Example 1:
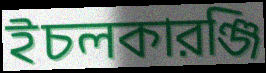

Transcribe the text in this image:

ইচলকারঞ্জি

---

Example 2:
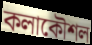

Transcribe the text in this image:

কলাকৌশল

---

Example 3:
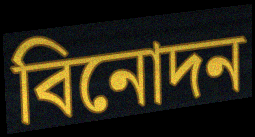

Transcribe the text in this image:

বিনোদন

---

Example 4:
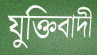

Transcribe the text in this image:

যুক্তিবাদী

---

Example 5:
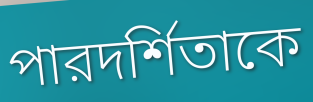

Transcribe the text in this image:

পারদর্শিতাকে